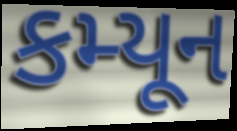
કમ્યૂન